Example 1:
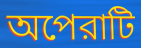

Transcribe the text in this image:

অপেরাটি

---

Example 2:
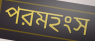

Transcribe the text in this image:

পরমহংস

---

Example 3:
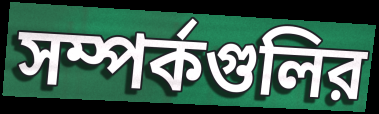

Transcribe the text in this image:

সম্পর্কগুলির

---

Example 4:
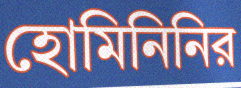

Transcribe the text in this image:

হোমিনিনির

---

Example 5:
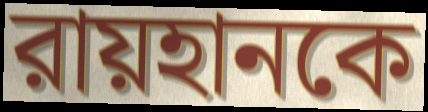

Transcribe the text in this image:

রায়হানকে